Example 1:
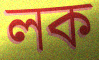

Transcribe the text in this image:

লক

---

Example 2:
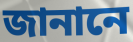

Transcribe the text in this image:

জানানে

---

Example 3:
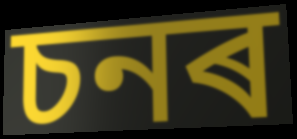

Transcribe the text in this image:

চনৰ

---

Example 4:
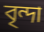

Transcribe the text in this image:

বৃন্দা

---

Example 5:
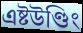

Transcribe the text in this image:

এষ্টউণ্ডিং